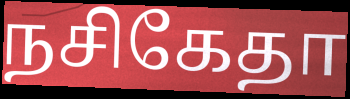
நசிகேதா